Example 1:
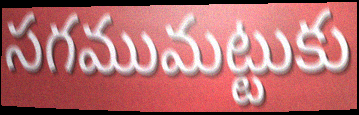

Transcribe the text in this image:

సగముమట్టుకు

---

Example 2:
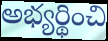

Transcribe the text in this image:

అభ్యర్థించి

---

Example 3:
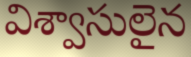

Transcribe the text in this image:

విశ్వాసులైన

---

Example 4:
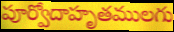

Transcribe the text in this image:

పూర్వోదాహృతములగు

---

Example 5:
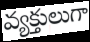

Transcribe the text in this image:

వ్యక్తులుగా